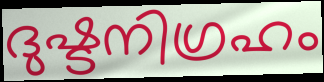
ദുഷ്ടനിഗ്രഹം